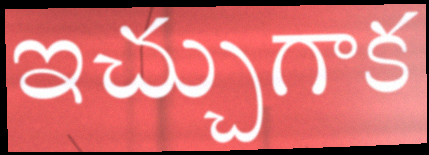
ఇచ్చుగాక